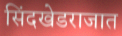
सिंदखेडराजात